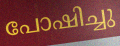
പോഷിച്ചു